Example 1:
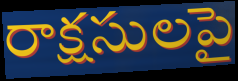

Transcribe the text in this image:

రాక్షసులపై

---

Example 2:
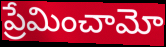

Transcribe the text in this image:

ప్రేమించామో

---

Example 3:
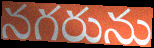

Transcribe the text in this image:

నగరును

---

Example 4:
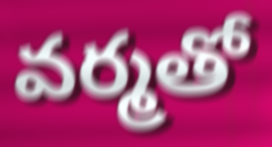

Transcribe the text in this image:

వర్మతో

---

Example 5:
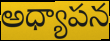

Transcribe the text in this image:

అధ్యాపన